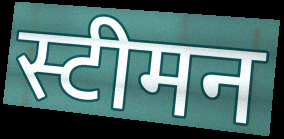
स्टीमन